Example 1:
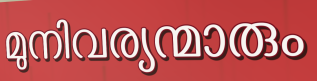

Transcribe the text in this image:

മുനിവര്യന്മാരും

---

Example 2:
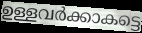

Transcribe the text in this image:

ഉള്ളവർക്കാകട്ടെ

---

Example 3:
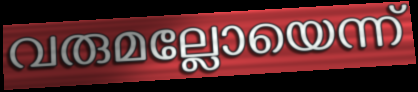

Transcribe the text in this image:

വരുമല്ലോയെന്ന്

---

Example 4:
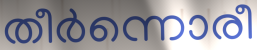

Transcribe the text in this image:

തീർന്നൊരീ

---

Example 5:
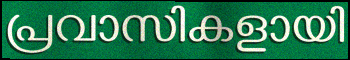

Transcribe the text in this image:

പ്രവാസികളായി